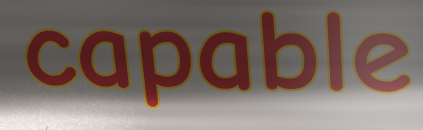
capable